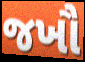
જખૌ